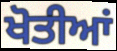
ਖੋਤੀਆਂ